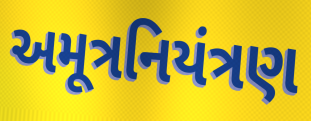
અમૂત્રનિયંત્રણ